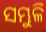
ସମ୍ଭୁଳି